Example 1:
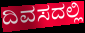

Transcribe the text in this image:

ದಿವಸದಲ್ಲಿ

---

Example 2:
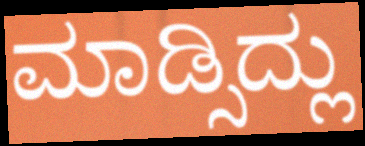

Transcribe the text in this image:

ಮಾಡ್ಸಿದ್ಲು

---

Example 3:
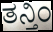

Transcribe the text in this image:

ತನ್ತಿಂ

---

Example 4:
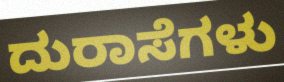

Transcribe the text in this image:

ದುರಾಸೆಗಳು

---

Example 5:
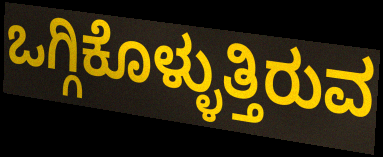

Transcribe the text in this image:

ಒಗ್ಗಿಕೊಳ್ಳುತ್ತಿರುವ